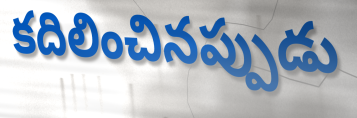
కదిలించినప్పుడు